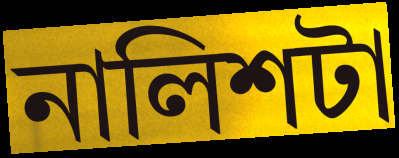
নালিশটা